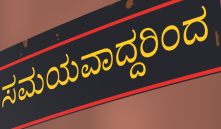
ಸಮಯವಾದ್ದರಿಂದ